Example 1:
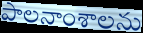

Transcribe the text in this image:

పాలనాంశాలను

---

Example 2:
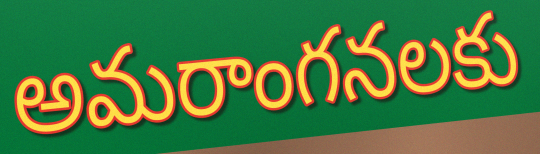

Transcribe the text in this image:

అమరాంగనలకు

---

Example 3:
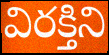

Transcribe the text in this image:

విరక్తిని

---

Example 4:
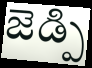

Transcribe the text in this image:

జెడ్పి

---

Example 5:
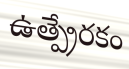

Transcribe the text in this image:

ఉత్ప్రేరకం